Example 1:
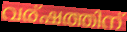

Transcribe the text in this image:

വര്ഷത്തിന്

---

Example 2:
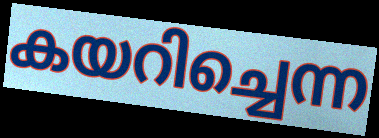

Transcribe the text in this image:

കയറിച്ചെന്ന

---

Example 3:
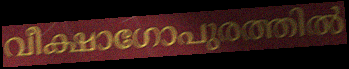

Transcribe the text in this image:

വീക്ഷാഗോപുരത്തിൽ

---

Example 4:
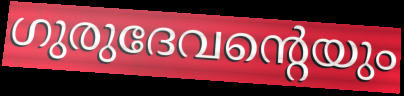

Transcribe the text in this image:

ഗുരുദേവന്റെയും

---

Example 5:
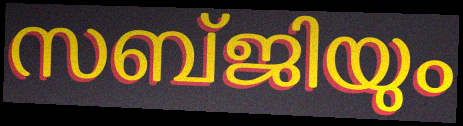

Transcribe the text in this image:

സബ്ജിയും